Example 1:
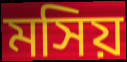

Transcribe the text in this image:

মসিয়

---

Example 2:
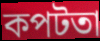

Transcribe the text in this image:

কপটতা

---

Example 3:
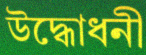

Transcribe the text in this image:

উদ্ধোধনী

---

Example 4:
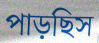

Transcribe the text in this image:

পাড়ছিস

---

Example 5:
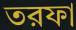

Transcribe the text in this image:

তরফা